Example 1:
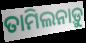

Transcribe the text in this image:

ତାମିଲନାଡ଼ୁ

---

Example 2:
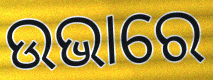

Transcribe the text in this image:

ଉଭାରେ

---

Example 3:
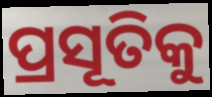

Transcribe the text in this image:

ପ୍ରସୂତିକୁ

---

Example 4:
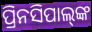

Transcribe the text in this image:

ପ୍ରିନସିପାଲ୍‍ଙ୍କ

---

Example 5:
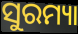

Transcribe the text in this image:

ସୁରମ୍ୟା